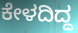
ಕೇಳದಿದ್ದ